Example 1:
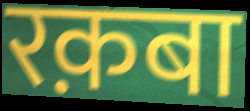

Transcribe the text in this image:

रक़बा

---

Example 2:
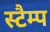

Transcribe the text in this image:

स्टैम्प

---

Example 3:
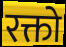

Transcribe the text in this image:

रक्तो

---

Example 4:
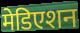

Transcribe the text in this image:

मेडिएशन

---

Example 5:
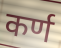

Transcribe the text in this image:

कर्ण